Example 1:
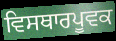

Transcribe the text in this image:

ਵਿਸਥਾਰਪੂਵਕ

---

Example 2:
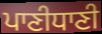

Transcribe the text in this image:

ਪਾਣੀਧਾਣੀ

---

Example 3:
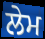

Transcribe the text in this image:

ਲੇਮ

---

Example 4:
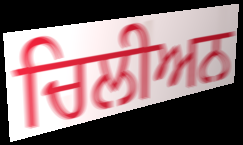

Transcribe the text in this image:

ਚਿਲੀਅਨ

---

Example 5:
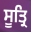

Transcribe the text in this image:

ਸੂਤ੍ਰਿ